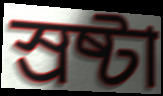
স্ৰষ্টা